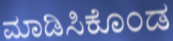
ಮಾಡಿಸಿಕೊಂಡ